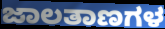
ಜಾಲತಾಣಗಳ